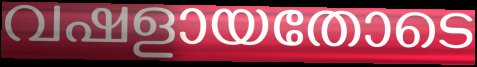
വഷളായതോടെ